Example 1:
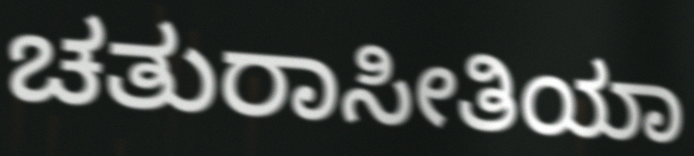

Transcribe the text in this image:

ಚತುರಾಸೀತಿಯಾ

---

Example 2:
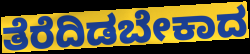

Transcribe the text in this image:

ತೆರೆದಿಡಬೇಕಾದ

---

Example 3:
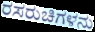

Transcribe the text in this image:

ರಸರುಚಿಗಳನು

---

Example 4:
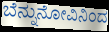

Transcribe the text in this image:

ಬೆನ್ನುನೋವಿನಿಂದ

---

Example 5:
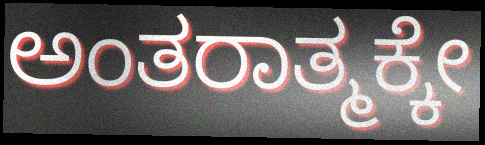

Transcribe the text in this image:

ಅಂತರಾತ್ಮಕ್ಕೇ